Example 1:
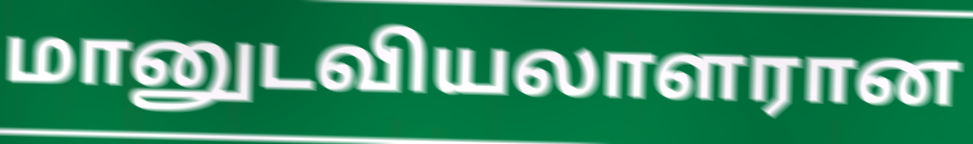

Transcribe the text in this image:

மானுடவியலாளரான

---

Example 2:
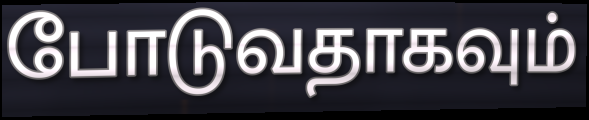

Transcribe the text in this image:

போடுவதாகவும்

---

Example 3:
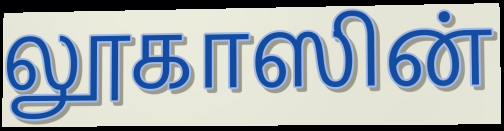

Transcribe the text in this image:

லூகாஸின்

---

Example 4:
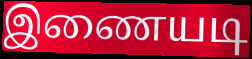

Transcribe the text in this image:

இணையடி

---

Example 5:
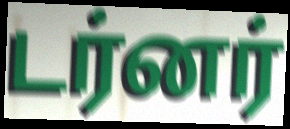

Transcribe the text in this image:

டர்னர்